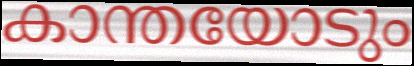
കാന്തയോടും